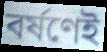
বর্ষণেই